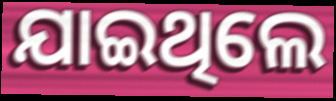
ଯାଇଥିଲେ